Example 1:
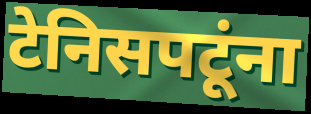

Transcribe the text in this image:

टेनिसपटूंना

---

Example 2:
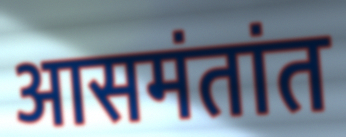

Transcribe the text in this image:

आसमंतांत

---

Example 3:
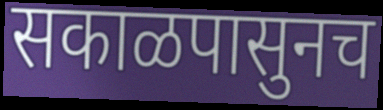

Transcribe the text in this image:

सकाळपासुनच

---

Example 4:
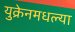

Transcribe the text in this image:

युक्रेनमधल्या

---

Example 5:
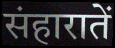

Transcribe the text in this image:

संहारातें